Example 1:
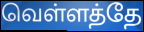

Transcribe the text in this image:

வெள்ளத்தே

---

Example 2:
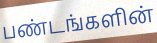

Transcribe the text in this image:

பண்டங்களின்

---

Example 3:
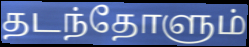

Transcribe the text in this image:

தடந்தோளும்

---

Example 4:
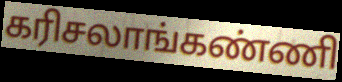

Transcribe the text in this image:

கரிசலாங்கண்ணி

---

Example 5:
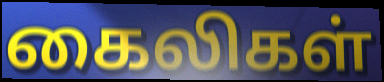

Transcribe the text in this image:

கைலிகள்